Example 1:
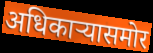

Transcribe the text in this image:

अधिकाऱ्यासमोर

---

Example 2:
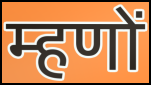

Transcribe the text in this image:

म्हणों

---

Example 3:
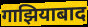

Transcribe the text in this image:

गाझियाबाद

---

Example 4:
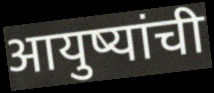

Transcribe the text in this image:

आयुष्यांची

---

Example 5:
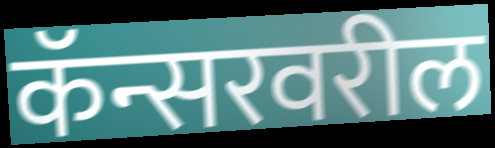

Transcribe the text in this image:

कॅन्सरवरील